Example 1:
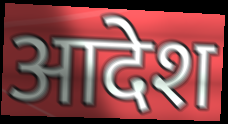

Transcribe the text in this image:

आदेश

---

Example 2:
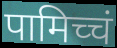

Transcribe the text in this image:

पामिच्चं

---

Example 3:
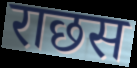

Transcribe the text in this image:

राछस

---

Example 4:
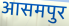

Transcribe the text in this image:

आसमपुर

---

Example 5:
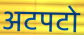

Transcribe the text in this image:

अटपटो